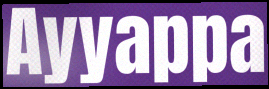
Ayyappa